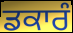
ਡਕਾਰੰ